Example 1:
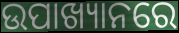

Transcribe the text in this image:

ଉପାଖ୍ୟାନରେ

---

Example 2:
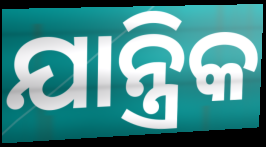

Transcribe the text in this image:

ଯାନ୍ତ୍ରିକ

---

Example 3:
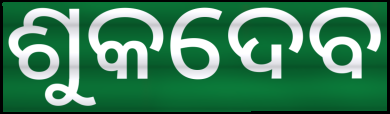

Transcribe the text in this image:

ଶୁକଦେବ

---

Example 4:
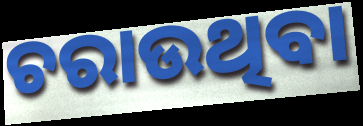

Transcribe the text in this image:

ଚରାଉଥିବା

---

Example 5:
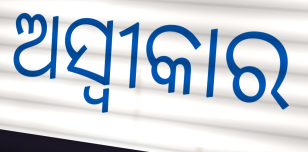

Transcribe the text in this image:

ଅସ୍ୱୀକାର